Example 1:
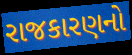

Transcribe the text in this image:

રાજકારણનો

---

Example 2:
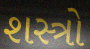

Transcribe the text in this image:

શસ્‍ત્રો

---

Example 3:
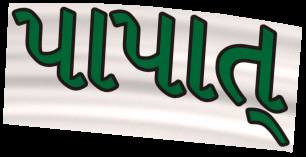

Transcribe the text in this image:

પાપાત્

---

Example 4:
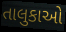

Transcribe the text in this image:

તાલુકાઓ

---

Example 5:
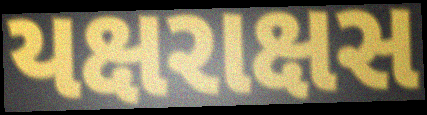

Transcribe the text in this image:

યક્ષરાક્ષસ